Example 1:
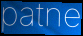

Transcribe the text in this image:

patne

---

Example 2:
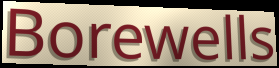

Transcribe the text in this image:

Borewells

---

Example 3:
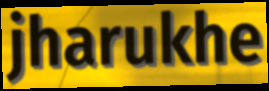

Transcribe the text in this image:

jharukhe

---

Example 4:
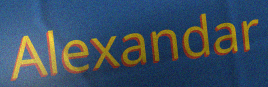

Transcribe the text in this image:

Alexandar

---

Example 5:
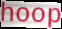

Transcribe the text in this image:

hoop